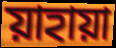
য়াহায়া